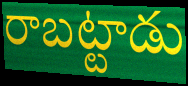
రాబట్టాడు